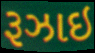
રૂઝાઇ